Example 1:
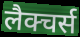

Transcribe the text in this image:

लैक्चर्स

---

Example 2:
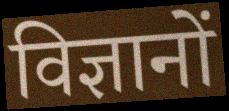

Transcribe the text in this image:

विज्ञानों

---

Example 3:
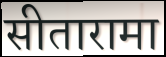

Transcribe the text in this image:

सीतारामा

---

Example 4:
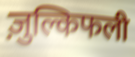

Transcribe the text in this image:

ज़ुल्किफली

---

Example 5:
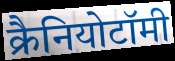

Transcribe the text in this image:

क्रैनियोटॉमी